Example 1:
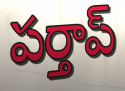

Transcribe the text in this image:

పర్తాప్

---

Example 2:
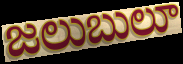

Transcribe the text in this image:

జలుబులూ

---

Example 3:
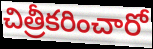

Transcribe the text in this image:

చిత్రీకరించారో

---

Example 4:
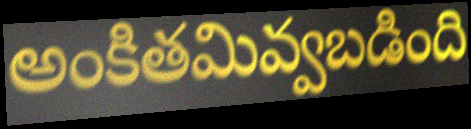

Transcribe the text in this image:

అంకితమివ్వబడింది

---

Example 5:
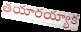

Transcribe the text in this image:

తయారయ్యాక